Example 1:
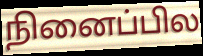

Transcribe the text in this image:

நினைப்பில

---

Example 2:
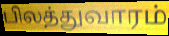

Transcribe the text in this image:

பிலத்துவாரம்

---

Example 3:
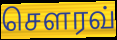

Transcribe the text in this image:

சௌரவ்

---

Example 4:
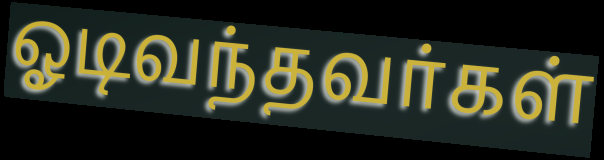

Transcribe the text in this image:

ஓடிவந்தவர்கள்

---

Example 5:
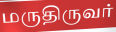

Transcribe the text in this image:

மருதிருவர்